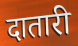
दातारी